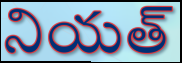
నియత్